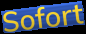
Sofort